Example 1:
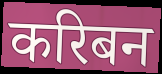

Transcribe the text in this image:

करिबन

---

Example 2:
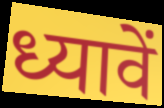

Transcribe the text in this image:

ध्यावें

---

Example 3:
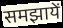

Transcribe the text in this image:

समझायें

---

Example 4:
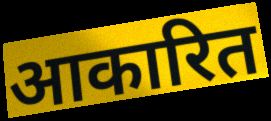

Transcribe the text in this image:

आकारित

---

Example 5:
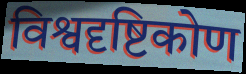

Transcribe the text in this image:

विश्वदृष्टिकोण